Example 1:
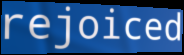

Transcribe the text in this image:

rejoiced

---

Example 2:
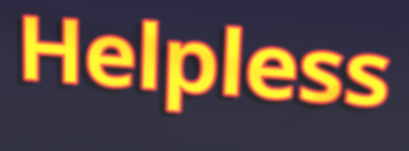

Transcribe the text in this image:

Helpless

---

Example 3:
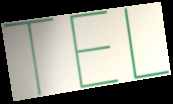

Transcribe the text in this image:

TEL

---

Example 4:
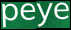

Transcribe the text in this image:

peye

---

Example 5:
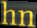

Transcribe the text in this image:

hn